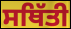
ਸਥਿੱਤੀ